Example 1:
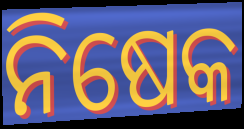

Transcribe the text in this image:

ନିଷେକ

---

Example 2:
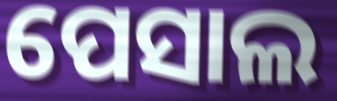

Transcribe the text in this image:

ପେସାଲ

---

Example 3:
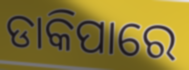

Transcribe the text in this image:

ଡାକିପାରେ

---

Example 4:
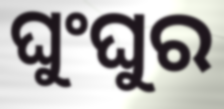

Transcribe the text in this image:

ଘୁଂଘୁର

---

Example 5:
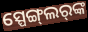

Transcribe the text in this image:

ସ୍ପେଙ୍ଗ୍‌ଲର୍‌ଙ୍କ